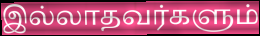
இல்லாதவர்களும்